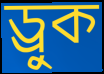
ড্রুক